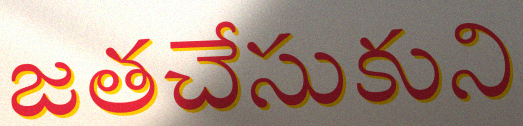
జతచేసుకుని